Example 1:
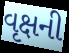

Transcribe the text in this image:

વૃક્ષની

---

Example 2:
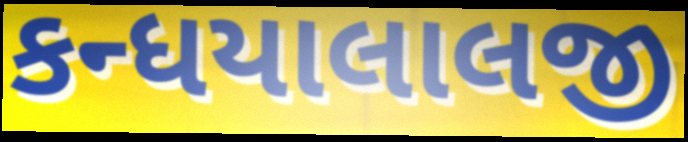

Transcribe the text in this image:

કન્ધયાલાલજી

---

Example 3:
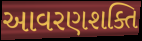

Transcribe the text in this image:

આવરણશક્તિ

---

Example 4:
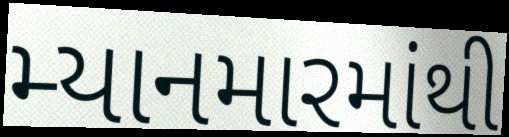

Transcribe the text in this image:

મ્યાનમારમાંથી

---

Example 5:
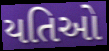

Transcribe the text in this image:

યતિઓ